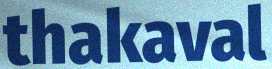
thakaval